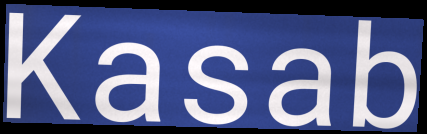
Kasab